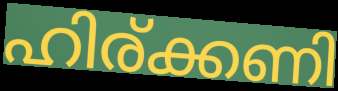
ഹിര്ക്കണി